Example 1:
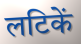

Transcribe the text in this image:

लटिकें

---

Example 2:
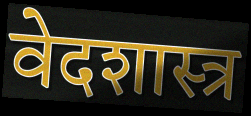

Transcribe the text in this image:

वेदशास्त्र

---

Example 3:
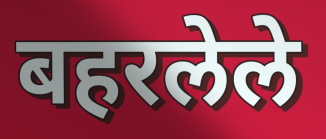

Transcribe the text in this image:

बहरलेले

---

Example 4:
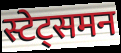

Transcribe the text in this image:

स्टेट्समन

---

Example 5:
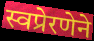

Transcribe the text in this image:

स्वप्रेरणेने